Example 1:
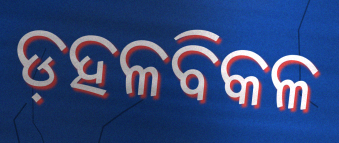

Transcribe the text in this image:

ଡ଼ହଳବିକଳ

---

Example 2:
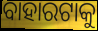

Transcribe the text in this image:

ବାହାରଟାକୁ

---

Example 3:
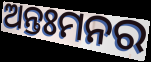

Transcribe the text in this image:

ଅନ୍ତଃମନର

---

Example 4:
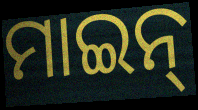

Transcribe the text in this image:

ମାଇନ୍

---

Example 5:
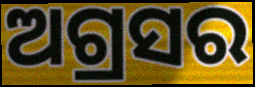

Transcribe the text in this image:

ଅଗ୍ରସର